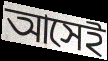
আসেই